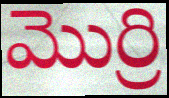
మొర్రి